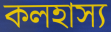
কলহাস্য